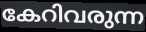
കേറിവരുന്ന